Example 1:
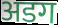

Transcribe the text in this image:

अडग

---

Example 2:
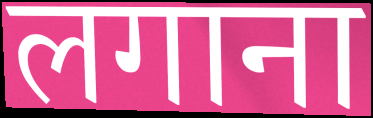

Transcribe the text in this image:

लगाना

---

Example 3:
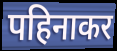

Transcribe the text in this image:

पहिनाकर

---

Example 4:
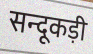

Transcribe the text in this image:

सन्दूकड़ी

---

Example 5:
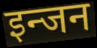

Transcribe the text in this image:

इन्जन